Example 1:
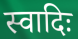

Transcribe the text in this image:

स्वादिः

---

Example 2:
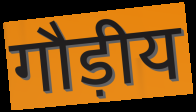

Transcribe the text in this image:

गौड़ीय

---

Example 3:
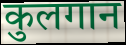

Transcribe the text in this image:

कुलगान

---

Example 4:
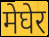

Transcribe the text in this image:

मेघेर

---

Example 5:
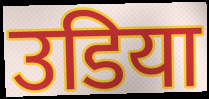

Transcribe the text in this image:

उडिया